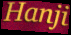
Hanji